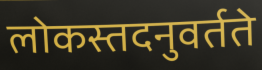
लोकस्तदनुवर्तते